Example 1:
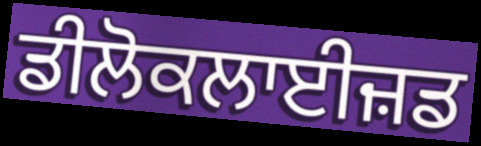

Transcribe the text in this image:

ਡੀਲੋਕਲਾਈਜ਼ਡ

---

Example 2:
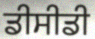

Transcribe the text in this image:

ਡੀਸੀਡੀ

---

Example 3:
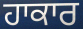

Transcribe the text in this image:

ਹਾਕਾਰ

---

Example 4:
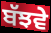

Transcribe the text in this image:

ਬੱਝਵੇ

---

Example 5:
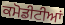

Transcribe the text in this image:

ਕਮੋਡੀਟੀਆਂ